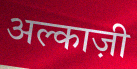
अल्काज़ी